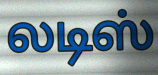
லடிஸ்